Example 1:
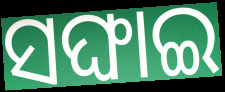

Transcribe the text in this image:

ସଙ୍ଘାଇ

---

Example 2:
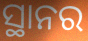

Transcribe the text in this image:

ସ୍ଥାନର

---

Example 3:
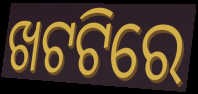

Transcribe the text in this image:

ଖଟଟିରେ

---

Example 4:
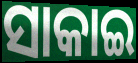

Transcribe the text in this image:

ସାକାଇ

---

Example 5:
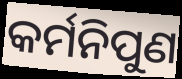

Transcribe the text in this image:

କର୍ମନିପୁଣ